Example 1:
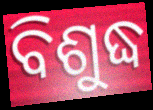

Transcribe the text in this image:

ବିଶୁଦ୍ଧ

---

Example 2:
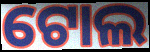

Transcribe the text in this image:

ଟୋଲ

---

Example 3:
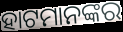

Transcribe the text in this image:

ହାଟମାନଙ୍କର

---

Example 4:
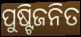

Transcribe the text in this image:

ପୁଷ୍ଟିଜନିତ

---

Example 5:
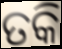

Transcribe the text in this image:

ତକି